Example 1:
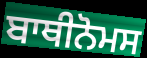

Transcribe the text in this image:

ਬਾਥੀਨੋਮਸ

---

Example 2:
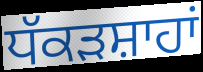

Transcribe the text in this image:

ਧੱਕੜਸ਼ਾਹਾਂ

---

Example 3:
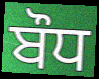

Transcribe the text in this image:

ਬੌਧ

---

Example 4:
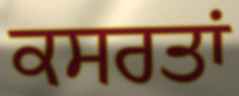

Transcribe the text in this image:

ਕਸਰਤਾਂ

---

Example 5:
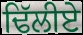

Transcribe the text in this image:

ਢਿੱਲੀਏ